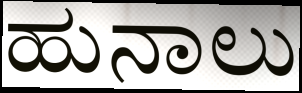
ಹುನಾಲು